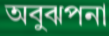
অবুঝপনা